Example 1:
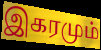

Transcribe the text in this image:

இகரமும்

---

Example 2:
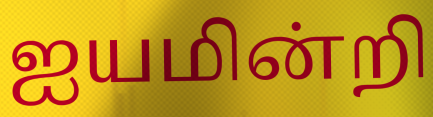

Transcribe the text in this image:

ஐயமின்றி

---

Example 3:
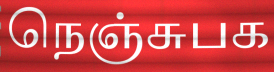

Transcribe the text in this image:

நெஞ்சுபக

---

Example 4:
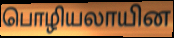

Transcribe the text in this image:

பொழியலாயின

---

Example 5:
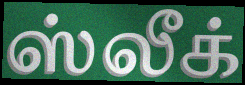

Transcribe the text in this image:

ஸ்லீக்